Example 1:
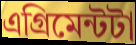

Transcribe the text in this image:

এগ্রিমেন্টটা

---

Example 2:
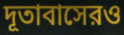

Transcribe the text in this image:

দূতাবাসেরও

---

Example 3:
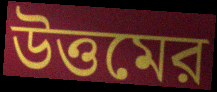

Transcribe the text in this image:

উত্তমের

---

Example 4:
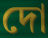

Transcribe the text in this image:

দো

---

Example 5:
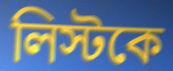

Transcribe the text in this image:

লিস্টকে